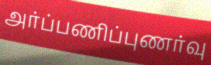
அர்ப்பணிப்புணர்வு